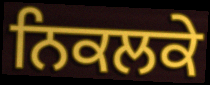
ਨਿਕਲਕੇ